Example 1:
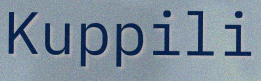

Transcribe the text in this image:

Kuppili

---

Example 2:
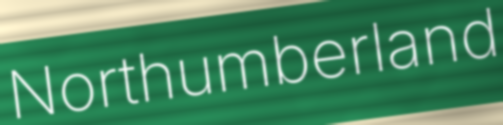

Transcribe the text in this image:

Northumberland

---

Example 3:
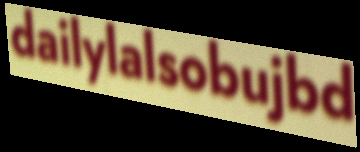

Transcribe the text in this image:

dailylalsobujbd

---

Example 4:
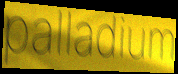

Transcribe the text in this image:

palladium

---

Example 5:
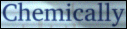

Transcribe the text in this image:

Chemically